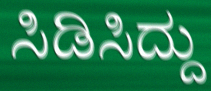
ಸಿಡಿಸಿದ್ದು